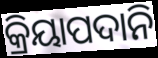
କ୍ରିୟାପଦାନି